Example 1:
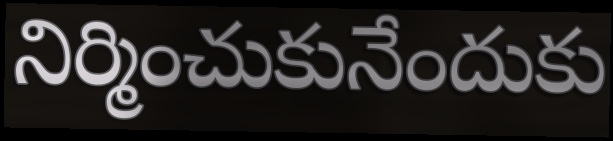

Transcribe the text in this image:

నిర్మించుకునేందుకు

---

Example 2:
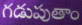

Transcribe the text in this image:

గడుపుతాం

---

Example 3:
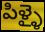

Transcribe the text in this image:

పిళ్ళై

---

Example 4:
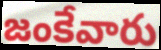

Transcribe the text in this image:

జంకేవారు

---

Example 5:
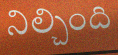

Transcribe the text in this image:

నిల్చింది